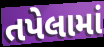
તપેલામાં